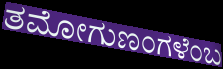
ತಮೋಗುಣಂಗಳೆಂಬ